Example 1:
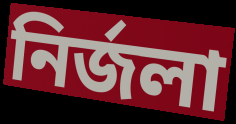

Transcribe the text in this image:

নির্জলা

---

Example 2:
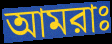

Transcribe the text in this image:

আমরাঃ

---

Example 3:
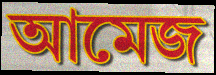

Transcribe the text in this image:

আমেজ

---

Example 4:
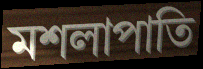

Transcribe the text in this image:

মশলাপাতি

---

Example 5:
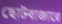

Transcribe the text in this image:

ছোটবাজারে